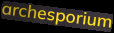
archesporium